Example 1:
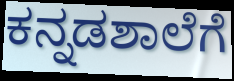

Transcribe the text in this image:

ಕನ್ನಡಶಾಲೆಗೆ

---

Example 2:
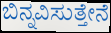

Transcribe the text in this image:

ಬಿನ್ನವಿಸುತ್ತೇನೆ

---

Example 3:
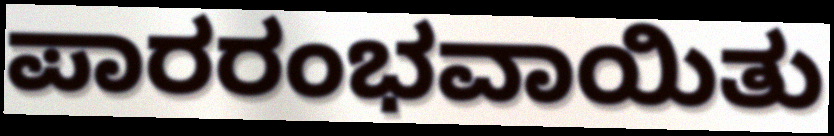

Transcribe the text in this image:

ಪಾರರಂಭವಾಯಿತು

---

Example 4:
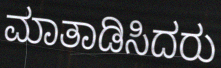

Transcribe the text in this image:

ಮಾತಾಡಿಸಿದರು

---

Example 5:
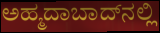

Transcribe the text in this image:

ಅಹ್ಮದಾಬಾದ್‍ನಲ್ಲಿ